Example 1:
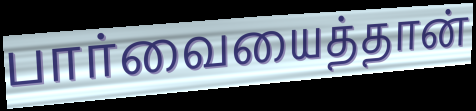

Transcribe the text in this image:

பார்வையைத்தான்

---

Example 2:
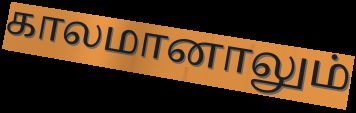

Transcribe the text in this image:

காலமானாலும்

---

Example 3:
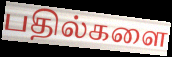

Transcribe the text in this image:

பதில்களை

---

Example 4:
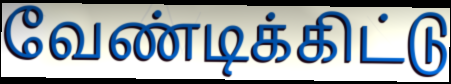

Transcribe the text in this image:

வேண்டிக்கிட்டு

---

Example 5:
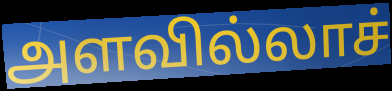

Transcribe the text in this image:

அளவில்லாச்